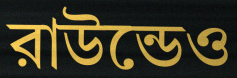
রাউন্ডেও